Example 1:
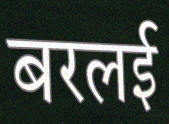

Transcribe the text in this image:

बरलई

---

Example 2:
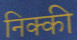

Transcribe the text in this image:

निक्‍की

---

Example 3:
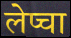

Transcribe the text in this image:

लेप्चा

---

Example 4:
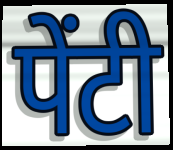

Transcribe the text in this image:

पेंटी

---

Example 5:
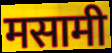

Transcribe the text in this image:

मसामी